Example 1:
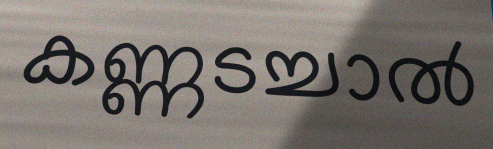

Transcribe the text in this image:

കണ്ണടച്ചാൽ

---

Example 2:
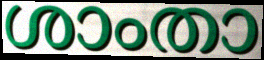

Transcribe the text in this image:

ശാംതാ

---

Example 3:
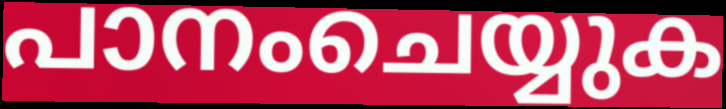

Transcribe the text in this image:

പാനംചെയ്യുക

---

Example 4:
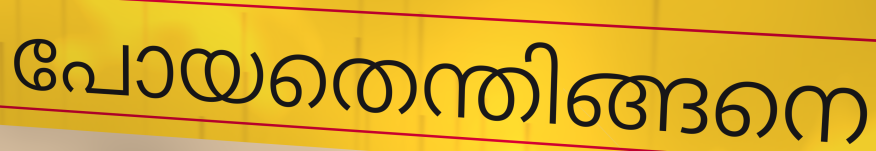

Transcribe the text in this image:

പോയതെന്തിങ്ങനെ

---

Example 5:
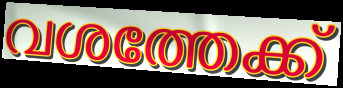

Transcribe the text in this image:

വശത്തേക്ക്